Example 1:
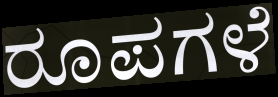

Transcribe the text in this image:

ರೂಪಗಳೆ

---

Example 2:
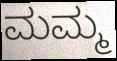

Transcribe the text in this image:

ಮಮ್ಮ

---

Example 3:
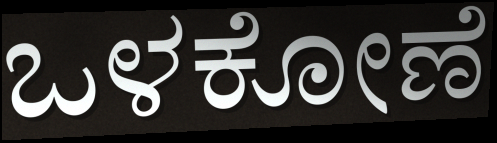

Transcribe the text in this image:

ಒಳಕೋಣೆ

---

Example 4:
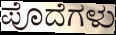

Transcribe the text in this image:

ಪೊದೆಗಳು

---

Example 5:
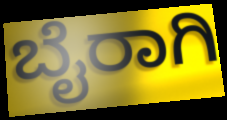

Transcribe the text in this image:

ಬೈರಾಗಿ